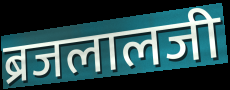
ब्रजलालजी